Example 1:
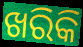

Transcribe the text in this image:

ଖରିକି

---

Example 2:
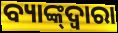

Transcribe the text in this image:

ବ୍ୟାଙ୍କ୍‌ଦ୍ୱାରା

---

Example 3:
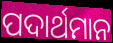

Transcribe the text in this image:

ପଦାର୍ଥମାନ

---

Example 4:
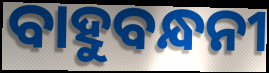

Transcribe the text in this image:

ବାହୁବନ୍ଧନୀ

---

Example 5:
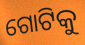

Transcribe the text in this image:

ଗୋଟିକୁ